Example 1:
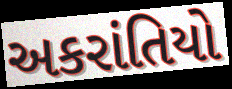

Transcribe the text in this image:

અકરાંતિયો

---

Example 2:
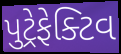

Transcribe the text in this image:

પુટ્રેફેક્ટિવ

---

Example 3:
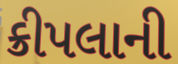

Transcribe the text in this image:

ક્રીપલાની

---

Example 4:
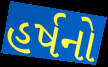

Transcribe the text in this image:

હર્ષનો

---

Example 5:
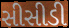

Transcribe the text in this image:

સીસીડી